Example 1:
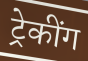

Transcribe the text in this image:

ट्रेकींग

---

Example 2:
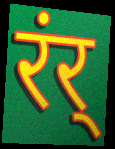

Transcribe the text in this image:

रंर्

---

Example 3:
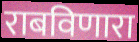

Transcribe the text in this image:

राबविणारा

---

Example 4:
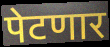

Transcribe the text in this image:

पेटणार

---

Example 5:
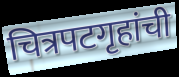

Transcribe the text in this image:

चित्रपटगृहांची